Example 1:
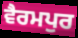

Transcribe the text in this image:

ਵੈਰਮਪੁਰ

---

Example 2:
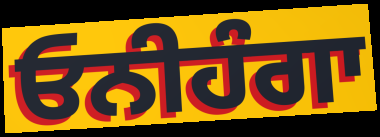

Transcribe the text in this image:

ਓਨੀਹੰਗਾ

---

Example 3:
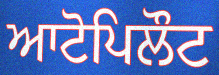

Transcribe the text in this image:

ਆਟੋਪਿਲੌਟ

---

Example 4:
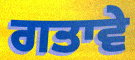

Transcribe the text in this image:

ਗਤਾਵੇ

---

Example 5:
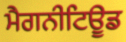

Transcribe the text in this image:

ਮੈਗਨੀਟਿਊਡ